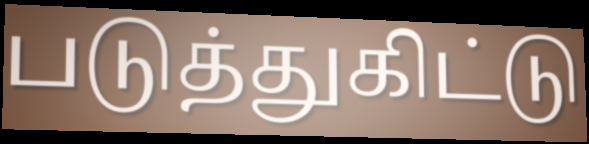
படுத்துகிட்டு